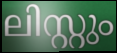
ലിസ്റ്റും